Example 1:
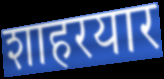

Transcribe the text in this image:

शाहरयार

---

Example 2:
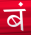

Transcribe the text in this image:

बं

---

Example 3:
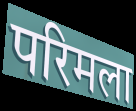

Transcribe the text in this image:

परिमला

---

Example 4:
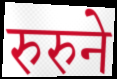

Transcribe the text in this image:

रुरुने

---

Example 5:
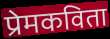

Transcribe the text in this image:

प्रेमकविता